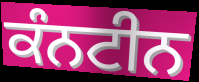
ਕੰਨਟੀਨ